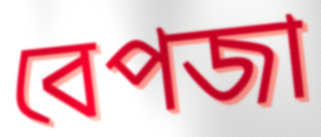
বেপজা